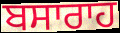
ਬਸਾਰਾਹ